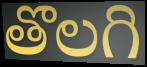
తొలగి